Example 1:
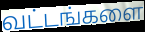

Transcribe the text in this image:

வட்டங்களை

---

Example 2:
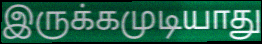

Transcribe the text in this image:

இருக்கமுடியாது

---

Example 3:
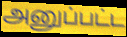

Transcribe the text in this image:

அனுப்பட்ட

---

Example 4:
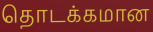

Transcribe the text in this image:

தொடக்கமான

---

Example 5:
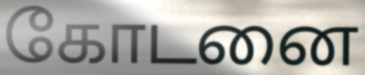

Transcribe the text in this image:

கோடனை